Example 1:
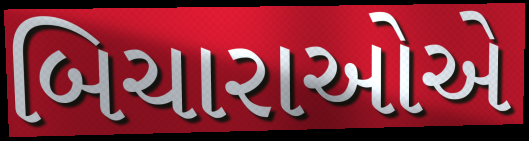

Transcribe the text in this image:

બિચારાઓએ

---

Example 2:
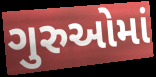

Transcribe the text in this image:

ગુરુઓમાં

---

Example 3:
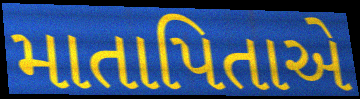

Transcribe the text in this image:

માતાપિતાએ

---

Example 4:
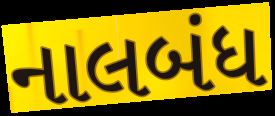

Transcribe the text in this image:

નાલબંધ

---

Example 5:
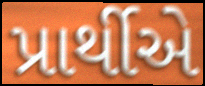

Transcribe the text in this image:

પ્રાર્થીએ